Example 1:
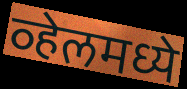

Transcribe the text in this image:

व्हेलमध्ये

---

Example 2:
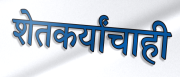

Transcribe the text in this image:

शेतकर्यांचाही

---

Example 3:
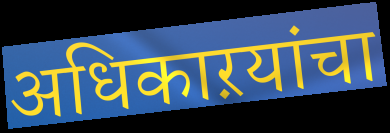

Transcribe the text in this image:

अधिकाऱयांचा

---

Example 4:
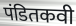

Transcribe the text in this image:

पंडितकवी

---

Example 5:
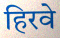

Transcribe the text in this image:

हिरवे